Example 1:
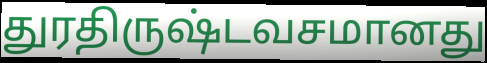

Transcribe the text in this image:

துரதிருஷ்டவசமானது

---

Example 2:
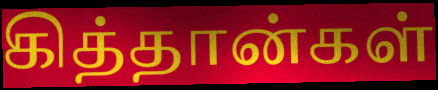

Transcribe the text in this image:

கித்தான்கள்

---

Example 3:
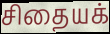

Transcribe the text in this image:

சிதையக்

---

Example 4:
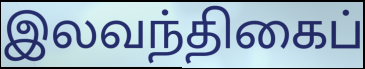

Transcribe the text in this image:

இலவந்திகைப்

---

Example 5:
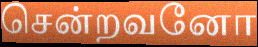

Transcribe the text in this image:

சென்றவனோ